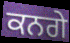
ਕਨਗੇ